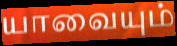
யாவையும்